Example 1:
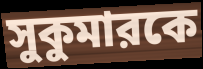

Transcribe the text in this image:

সুকুমারকে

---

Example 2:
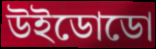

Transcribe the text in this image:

উইডোডো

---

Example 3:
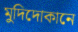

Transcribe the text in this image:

মুদিদোকানে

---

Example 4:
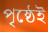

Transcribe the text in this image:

পৃষ্ঠেই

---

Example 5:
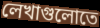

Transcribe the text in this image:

লেখাগুলোতে